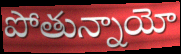
పోతున్నాయో